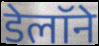
डेलॉने